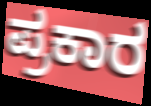
ಪ್ರಕಾರ